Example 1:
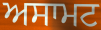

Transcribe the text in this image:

ਅਸਾਮਟ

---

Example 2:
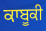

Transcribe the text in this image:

ਕਾਬੂਕੀ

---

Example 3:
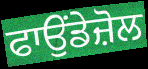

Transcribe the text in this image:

ਫਾਉਂਡੇਜ਼ੋਲ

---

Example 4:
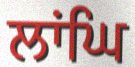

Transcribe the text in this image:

ਲਾਂਘਿ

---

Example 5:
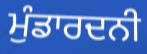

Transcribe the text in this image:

ਮੁੰਡਾਰਦਨੀ